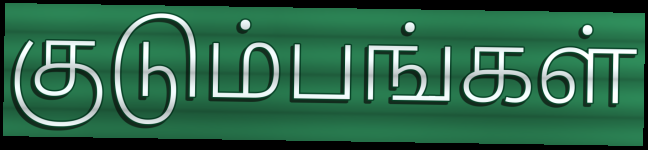
குடும்பங்கள்